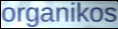
organikos